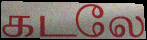
கடலே